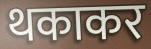
थकाकर